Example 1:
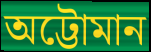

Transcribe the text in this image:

অট্টোমান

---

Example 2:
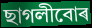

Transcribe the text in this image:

ছাগলীবোৰ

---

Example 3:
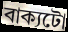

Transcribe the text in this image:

বাক্য়টো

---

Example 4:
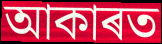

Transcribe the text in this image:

আকাৰত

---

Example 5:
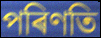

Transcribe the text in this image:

পৰিণতি